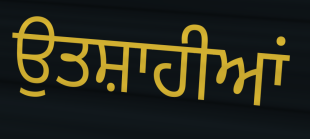
ਉਤਸ਼ਾਹੀਆਂ